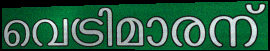
വെട്രിമാരന്